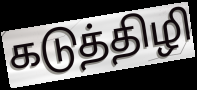
கடுத்திழி